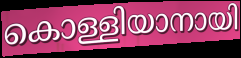
കൊള്ളിയാനായി